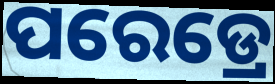
ପରେଡ୍ରେ